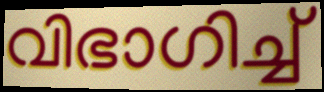
വിഭാഗിച്ച്